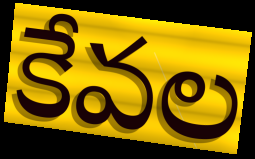
కేవల